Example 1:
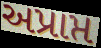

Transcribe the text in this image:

અપ્રાપ્ત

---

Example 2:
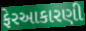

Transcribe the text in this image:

ફેરઆકારણી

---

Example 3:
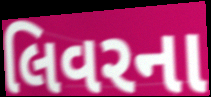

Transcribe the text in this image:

લિવરના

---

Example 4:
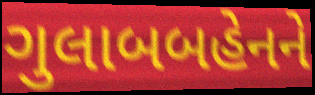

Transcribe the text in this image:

ગુલાબબહેનને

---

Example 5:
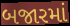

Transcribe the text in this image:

બજારમાં